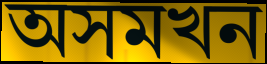
অসমখন